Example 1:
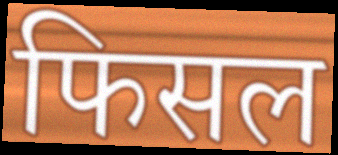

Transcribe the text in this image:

फिसल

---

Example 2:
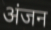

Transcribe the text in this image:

अंजन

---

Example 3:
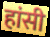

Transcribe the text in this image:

हांसी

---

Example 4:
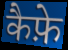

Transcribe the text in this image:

कैफ़े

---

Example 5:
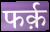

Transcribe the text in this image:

फर्क़